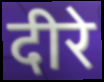
दीरे